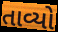
તાવ્યો